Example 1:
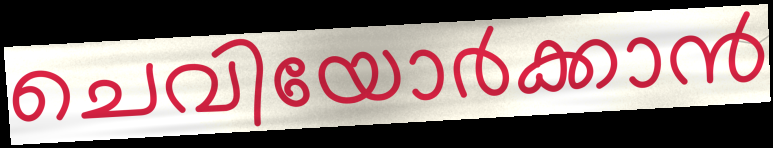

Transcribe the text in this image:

ചെവിയോർക്കാൻ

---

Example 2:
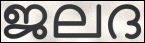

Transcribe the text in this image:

ജലദ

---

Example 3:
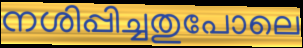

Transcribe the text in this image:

നശിപ്പിച്ചതുപോലെ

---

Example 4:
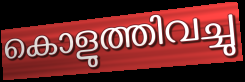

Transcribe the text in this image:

കൊളുത്തിവച്ചു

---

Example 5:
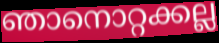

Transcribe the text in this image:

ഞാനൊറ്റക്കല്ല